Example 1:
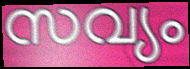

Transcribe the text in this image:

സവ്യം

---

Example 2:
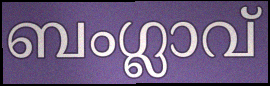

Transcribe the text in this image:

ബംഗ്ലാവ്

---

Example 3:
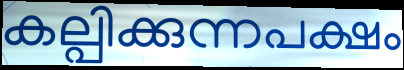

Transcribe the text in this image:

കല്പിക്കുന്നപക്ഷം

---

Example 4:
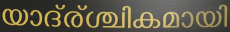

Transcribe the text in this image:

യാദ്ര്ശ്ചികമായി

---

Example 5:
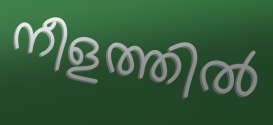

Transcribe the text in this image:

നീളത്തിൽ